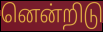
னென்றிடு